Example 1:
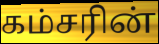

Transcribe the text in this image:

கம்சரின்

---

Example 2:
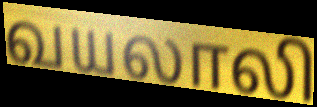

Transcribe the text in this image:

வயலாலி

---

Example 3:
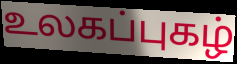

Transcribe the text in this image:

உலகப்புகழ்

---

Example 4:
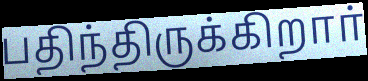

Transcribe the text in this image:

பதிந்திருக்கிறார்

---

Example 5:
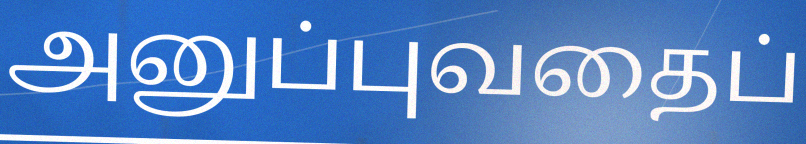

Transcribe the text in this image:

அனுப்புவதைப்